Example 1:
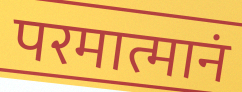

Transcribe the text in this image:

परमात्मानं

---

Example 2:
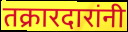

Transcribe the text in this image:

तक्रारदारांनी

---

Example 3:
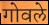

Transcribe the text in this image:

गोवले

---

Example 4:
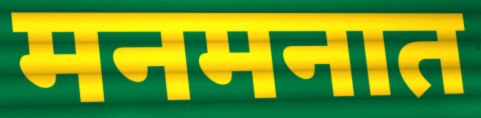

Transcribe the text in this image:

मनमनात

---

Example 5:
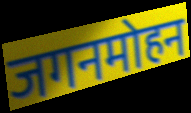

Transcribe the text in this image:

जगनमोहन